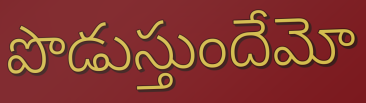
పొడుస్తుందేమో